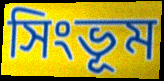
সিংভূম